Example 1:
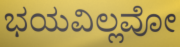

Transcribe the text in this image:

ಭಯವಿಲ್ಲವೋ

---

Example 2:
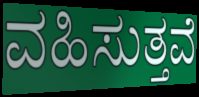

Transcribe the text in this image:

ವಹಿಸುತ್ತವೆ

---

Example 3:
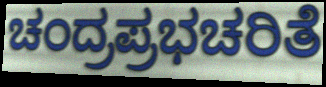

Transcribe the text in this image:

ಚಂದ್ರಪ್ರಭಚರಿತೆ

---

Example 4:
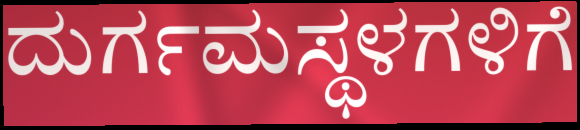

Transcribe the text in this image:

ದುರ್ಗಮಸ್ಥಳಗಳಿಗೆ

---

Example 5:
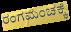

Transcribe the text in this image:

ರಂಗಮಂಚಕ್ಕೆ